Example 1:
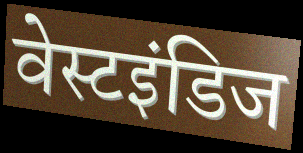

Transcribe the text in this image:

वेस्टइंडिज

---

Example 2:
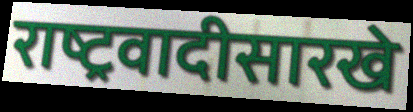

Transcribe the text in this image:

राष्ट्रवादीसारखे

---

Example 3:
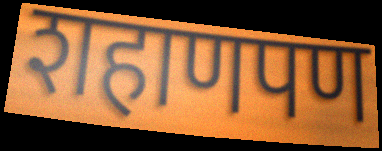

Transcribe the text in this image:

शहाणपण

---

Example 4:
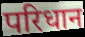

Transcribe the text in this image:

परिधान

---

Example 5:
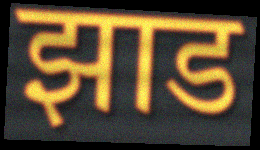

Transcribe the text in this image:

झाड